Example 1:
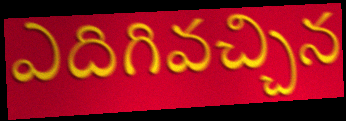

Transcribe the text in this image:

ఎదిగివచ్చిన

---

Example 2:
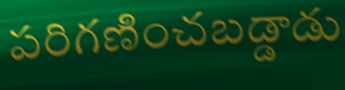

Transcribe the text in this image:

పరిగణించబడ్డాడు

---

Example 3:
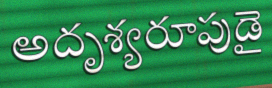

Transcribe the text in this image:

అదృశ్యరూపుడై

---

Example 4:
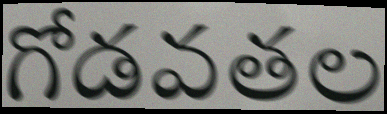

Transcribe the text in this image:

గోడవతల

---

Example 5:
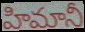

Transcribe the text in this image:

హిమానీ